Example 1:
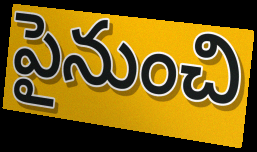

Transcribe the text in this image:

పైనుంచి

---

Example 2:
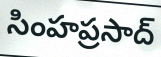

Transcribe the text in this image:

సింహప్రసాద్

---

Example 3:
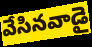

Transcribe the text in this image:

వేసినవాడై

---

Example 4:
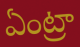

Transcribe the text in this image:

ఏంట్రా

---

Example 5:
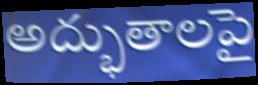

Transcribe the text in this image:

అద్భుతాలపై